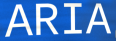
ARIA